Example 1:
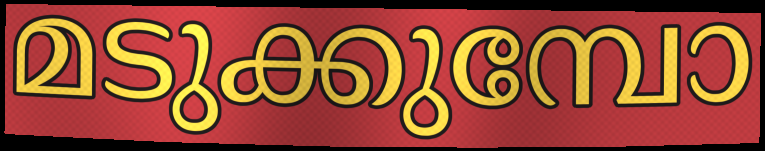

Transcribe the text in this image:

മടുക്കുമ്പോ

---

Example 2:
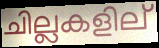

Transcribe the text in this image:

ചില്ലകളില്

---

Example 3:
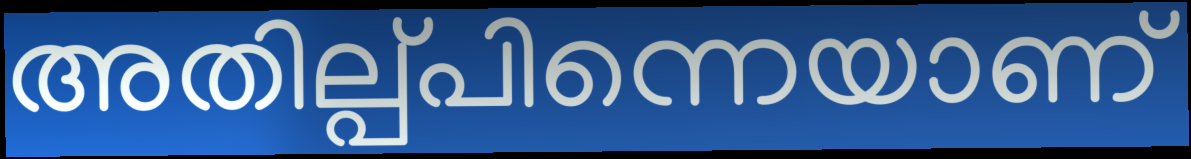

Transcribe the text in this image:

അതില്പ്പിന്നെയാണ്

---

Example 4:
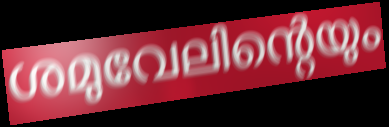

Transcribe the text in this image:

ശമുവേലിന്റെയും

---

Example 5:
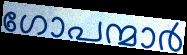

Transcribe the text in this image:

ഗോപന്മാർ